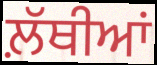
ਲ਼ੱਥੀਆਂ